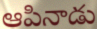
ఆపినాడు